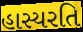
હાસ્યરતિ